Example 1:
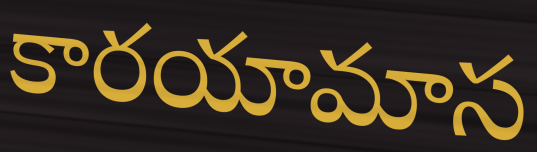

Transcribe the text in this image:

కారయామాస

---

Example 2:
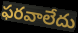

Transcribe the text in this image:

ఫరవాలేదు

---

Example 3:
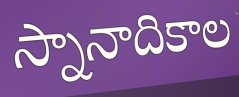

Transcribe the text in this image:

స్నానాదికాల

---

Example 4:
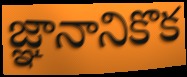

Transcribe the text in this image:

జ్ఞానానికొక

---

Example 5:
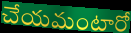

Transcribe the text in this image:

చేయమంటారో